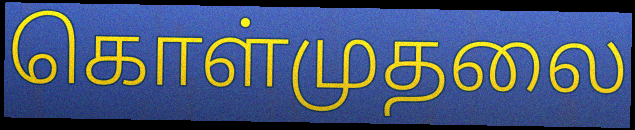
கொள்முதலை